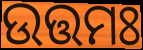
ଉତ୍ତମଃ